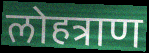
लोहत्राण